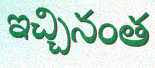
ఇచ్చినంత